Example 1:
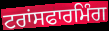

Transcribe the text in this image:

ਟਰਾਂਸਫਾਰਮਿੰਗ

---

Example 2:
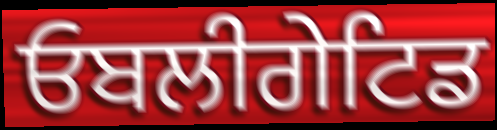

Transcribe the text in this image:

ਓਬਲੀਗੇਟਿਡ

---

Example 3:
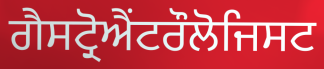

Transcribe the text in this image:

ਗੈਸਟ੍ਰੋਐਂਟਰੌਲੋਜਿਸਟ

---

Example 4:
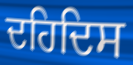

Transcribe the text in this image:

ਦਹਿਦਿਸ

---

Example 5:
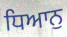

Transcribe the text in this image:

ਧਿਆਨੁ